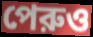
পেরুও